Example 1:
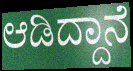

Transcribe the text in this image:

ಆಡಿದ್ದಾನೆ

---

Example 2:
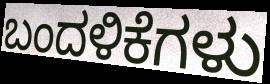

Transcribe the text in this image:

ಬಂದಳಿಕೆಗಳು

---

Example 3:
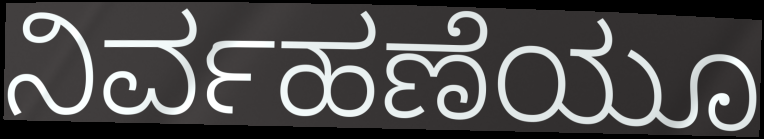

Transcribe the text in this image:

ನಿರ್ವಹಣೆಯೂ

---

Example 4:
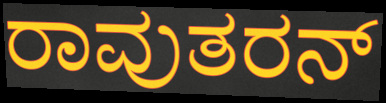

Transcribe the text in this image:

ರಾವುತರನ್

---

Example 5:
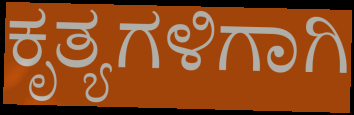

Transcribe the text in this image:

ಕೃತ್ಯಗಳಿಗಾಗಿ